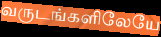
வருடங்களிலேயே